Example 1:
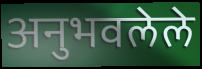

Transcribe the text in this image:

अनुभवलेले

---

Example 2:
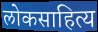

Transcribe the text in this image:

लोकसाहित्य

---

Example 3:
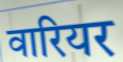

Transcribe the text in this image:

वारियर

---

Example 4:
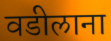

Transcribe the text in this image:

वडीलाना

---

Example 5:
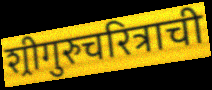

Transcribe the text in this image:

श्रीगुरुचरित्राची